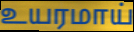
உயரமாய்